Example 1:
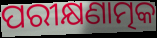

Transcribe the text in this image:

ପରୀକ୍ଷଣାତ୍ମକ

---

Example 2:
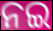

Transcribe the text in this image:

ନଇ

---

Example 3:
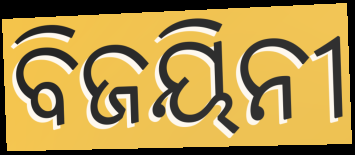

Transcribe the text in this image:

ବିଜୟିନୀ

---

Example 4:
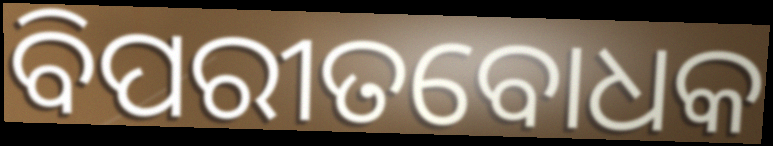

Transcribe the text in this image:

ବିପରୀତବୋଧକ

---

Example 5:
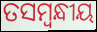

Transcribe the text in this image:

ତସମ୍ବନ୍ଧୀୟ